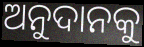
ଅନୁଦାନକୁ